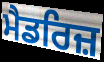
ਮੈਡਰਿਜ਼